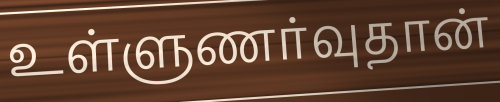
உள்ளுணர்வுதான்